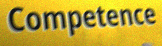
Competence